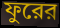
ফুরের